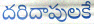
దరిదాపులకే